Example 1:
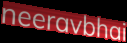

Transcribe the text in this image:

neeravbhai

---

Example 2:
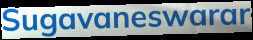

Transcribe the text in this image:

Sugavaneswarar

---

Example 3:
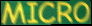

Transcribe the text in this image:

MICRO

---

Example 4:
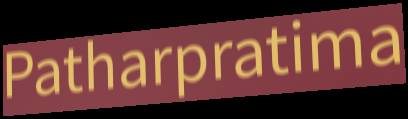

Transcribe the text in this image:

Patharpratima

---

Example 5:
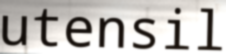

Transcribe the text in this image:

utensil